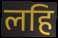
लहि